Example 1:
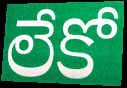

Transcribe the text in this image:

లేకో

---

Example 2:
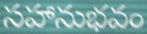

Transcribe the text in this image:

సహానుభవం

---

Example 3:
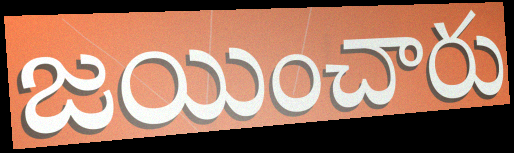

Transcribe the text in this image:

జయించారు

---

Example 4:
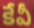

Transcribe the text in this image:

కేవీ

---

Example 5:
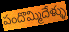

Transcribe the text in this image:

పందొమ్మిదేళ్ళు